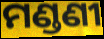
ମଣ୍ଡଣୀ